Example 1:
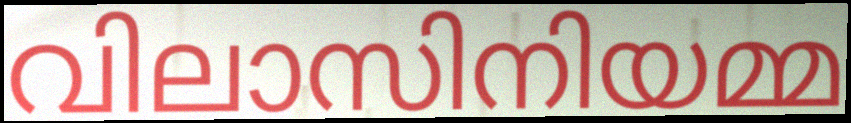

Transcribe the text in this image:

വിലാസിനിയമ്മ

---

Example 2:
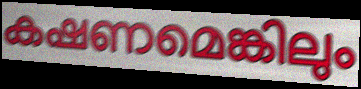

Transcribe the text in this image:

കഷണമെങ്കിലും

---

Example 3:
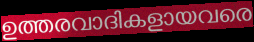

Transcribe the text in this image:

ഉത്തരവാദികളായവരെ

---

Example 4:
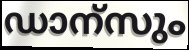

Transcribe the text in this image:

ഡാന്സും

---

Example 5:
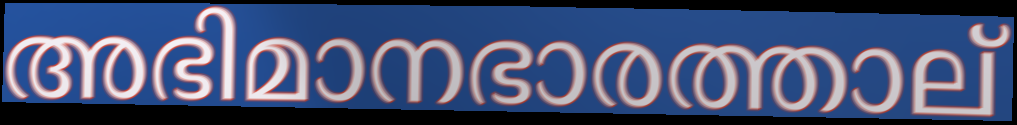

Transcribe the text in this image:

അഭിമാനഭാരത്താല്